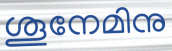
ശൂനേമിനു